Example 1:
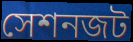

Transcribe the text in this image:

সেশনজট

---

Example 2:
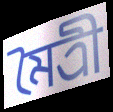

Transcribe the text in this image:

মৈত্রী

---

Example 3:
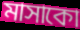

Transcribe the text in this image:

মাসাকো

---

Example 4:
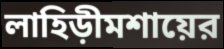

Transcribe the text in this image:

লাহিড়ীমশায়ের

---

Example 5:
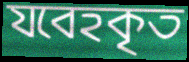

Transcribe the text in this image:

যবেহকৃত